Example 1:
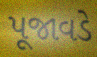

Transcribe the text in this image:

પૂજાવડે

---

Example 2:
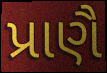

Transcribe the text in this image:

પ્રાણૈ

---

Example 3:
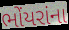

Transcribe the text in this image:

ભોંયરાંના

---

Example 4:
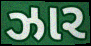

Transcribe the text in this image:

ઝાર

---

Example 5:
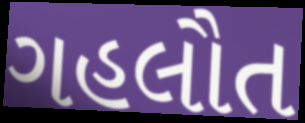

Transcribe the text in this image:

ગહલૌત